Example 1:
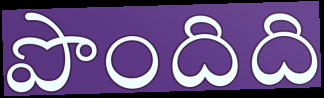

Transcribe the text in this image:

పొందిది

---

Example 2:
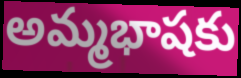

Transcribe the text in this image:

అమ్మభాషకు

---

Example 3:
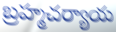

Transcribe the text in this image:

బ్రహ్మచర్యాయ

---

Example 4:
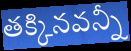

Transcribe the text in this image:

తక్కినవన్నీ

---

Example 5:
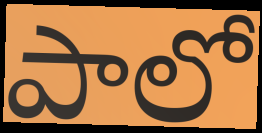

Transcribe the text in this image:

పాలో